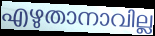
എഴുതാനാവില്ല